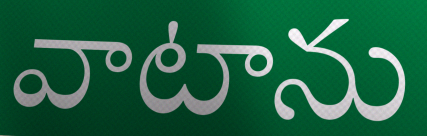
వాటాను